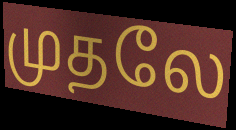
முதலே